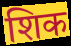
शिक